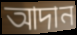
আদান